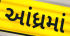
આંધ્રમાં